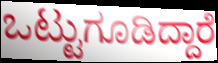
ಒಟ್ಟುಗೂಡಿದ್ದಾರೆ